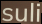
suli